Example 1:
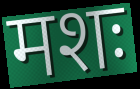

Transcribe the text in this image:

मशः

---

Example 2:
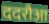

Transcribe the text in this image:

ददरौआ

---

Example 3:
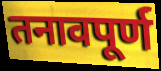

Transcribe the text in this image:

तनावपूर्ण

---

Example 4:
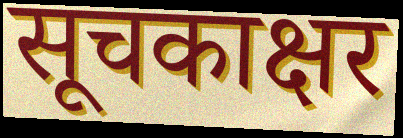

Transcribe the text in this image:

सूचकाक्षर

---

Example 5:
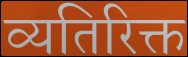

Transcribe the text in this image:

व्यतिरिक्त